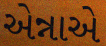
એન્નાએ